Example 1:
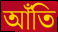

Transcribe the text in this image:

আঁতি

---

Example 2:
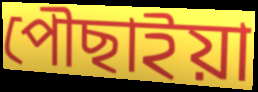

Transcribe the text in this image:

পৌছাইয়া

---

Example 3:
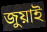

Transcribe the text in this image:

জুয়াই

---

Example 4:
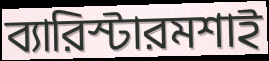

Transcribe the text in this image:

ব্যারিস্টারমশাই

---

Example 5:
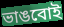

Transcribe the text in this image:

ভাঙবোই